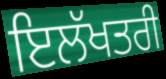
ਇਲੱਖਤਰੀ